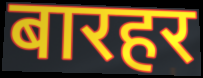
बारहर